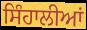
ਸਿੰਹਾਲੀਆਂ